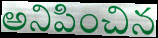
అనిపించిన